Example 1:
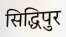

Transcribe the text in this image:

सिद्धिपुर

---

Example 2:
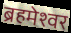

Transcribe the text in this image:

ब्रहमेश्वर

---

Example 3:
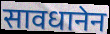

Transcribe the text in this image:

सावधानेन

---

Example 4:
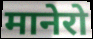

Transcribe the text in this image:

मानेरो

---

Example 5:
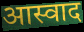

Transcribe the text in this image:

आस्‍वाद